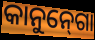
କାନୁନ୍‍ଗୋ